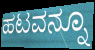
ಹಟವನ್ನೂ